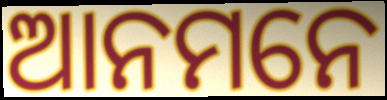
ଆନମନେ